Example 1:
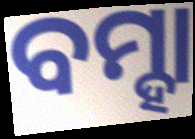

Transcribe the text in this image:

ବମ୍ହା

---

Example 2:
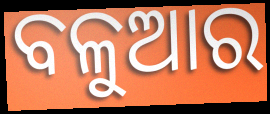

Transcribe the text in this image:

ବଳୁଆର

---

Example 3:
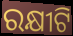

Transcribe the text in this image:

ରକ୍ଷୀଟି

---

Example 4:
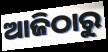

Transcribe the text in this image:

ଆଜିଠାରୁ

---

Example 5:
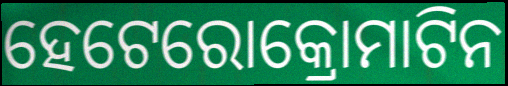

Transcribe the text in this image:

ହେଟେରୋକ୍ରୋମାଟିନ